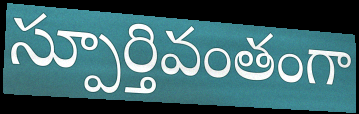
స్పూర్తివంతంగా